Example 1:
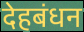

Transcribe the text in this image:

देहबंधन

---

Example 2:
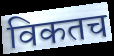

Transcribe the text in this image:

विकतच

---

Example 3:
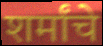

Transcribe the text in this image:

शर्मांचे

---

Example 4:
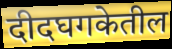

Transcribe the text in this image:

दीदघगकेतील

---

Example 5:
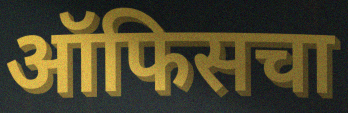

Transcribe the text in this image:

ऑफिसचा